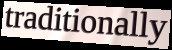
traditionally